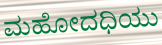
ಮಹೋದಧಿಯು